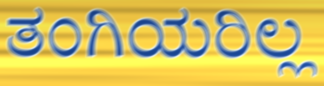
ತಂಗಿಯರಿಲ್ಲ